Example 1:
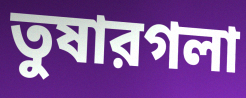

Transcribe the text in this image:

তুষারগলা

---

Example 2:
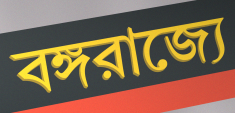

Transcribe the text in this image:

বঙ্গরাজ্যে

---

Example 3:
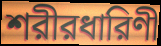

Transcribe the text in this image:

শরীরধারিণী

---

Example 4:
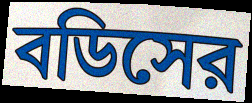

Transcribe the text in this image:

বডিসের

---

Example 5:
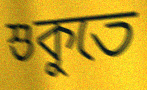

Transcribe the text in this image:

শুকুতে